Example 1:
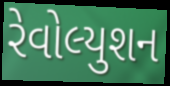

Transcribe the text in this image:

રેવોલ્યુશન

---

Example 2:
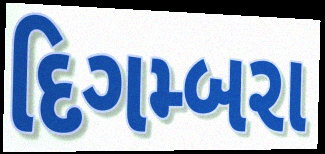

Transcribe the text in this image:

દિગમ્બરા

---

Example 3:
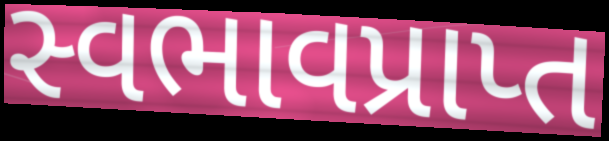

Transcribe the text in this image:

સ્વભાવપ્રાપ્ત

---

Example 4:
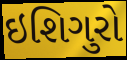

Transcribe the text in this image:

ઇશિગુરો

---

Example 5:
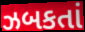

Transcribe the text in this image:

ઝબકતાં